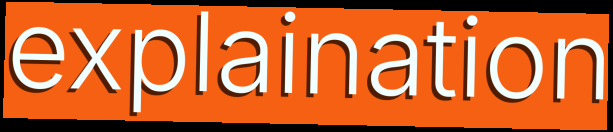
explaination